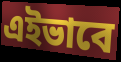
এইভাবে